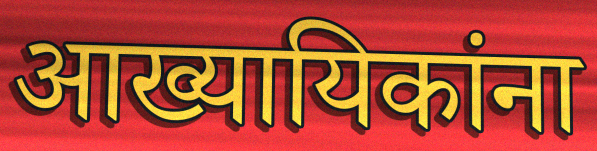
आख्यायिकांना